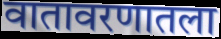
वातावरणातला